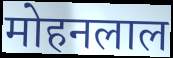
मोहनलाल